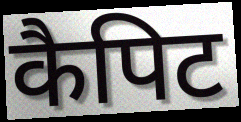
कैपिट